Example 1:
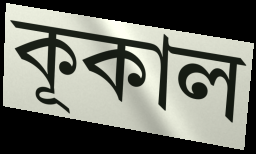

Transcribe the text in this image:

কূকাল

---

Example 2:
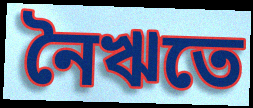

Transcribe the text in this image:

নৈঋতে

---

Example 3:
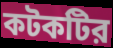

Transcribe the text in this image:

কটকটির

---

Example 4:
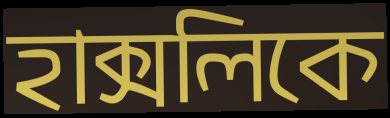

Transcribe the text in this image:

হাক্সলিকে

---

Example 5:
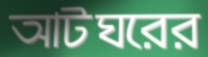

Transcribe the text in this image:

আটঘরের